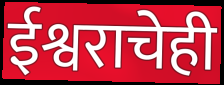
ईश्वराचेही